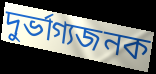
দুৰ্ভাগ্যজনক